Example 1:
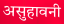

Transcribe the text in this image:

असुहावनी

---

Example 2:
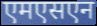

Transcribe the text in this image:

एमएसएन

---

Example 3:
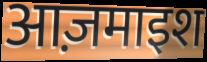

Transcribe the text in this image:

आज़माइश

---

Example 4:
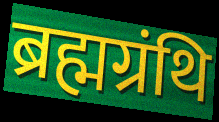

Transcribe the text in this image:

ब्रह्मग्रंथि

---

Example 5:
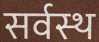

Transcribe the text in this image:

सर्वस्थ